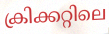
ക്രിക്കറ്റിലെ